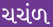
ચચંળ